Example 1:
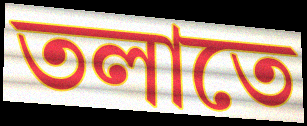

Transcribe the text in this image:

তলাতে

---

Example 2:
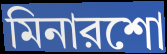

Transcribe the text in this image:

মিনারশো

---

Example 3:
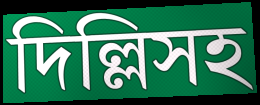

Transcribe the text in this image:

দিল্লিসহ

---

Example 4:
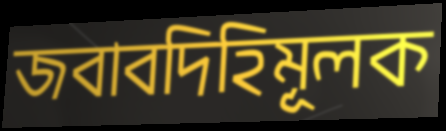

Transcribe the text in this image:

জবাবদিহিমূলক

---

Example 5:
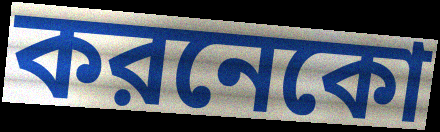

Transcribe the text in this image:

করনেকো